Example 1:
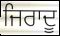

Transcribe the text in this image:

ਜਿਰਾਦੂ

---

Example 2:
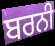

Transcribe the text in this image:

ਬਰਨੀ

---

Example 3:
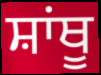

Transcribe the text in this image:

ਸ਼ਾਂਥੂ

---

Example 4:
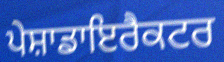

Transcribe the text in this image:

ਪੇਸ਼ਾਡਾਇਰੈਕਟਰ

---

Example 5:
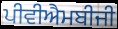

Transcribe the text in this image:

ਪੀਵੀਐਮਬੀਜੀ